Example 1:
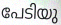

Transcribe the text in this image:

പേടിയു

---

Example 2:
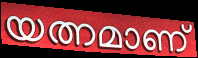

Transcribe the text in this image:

യത്നമാണ്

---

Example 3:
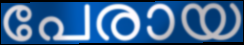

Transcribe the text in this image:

പേരായ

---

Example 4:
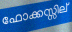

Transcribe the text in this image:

ഫോക്കസ്സില്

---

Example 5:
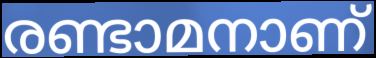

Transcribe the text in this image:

രണ്ടാമനാണ്